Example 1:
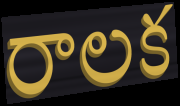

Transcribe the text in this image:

రాలక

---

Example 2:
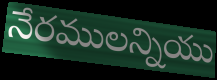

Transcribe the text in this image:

నేరములన్నియు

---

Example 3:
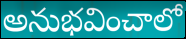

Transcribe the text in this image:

అనుభవించాలో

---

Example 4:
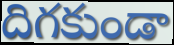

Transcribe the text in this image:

దిగకుండా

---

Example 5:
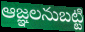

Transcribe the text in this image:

ఆజ్ఞలనుబట్టి